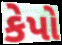
કેપો